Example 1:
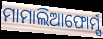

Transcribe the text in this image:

ମାମାଲିଆଫୋର୍ମ୍ସ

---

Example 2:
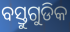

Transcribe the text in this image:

ବସ୍ତୁଗୁଡିକ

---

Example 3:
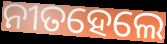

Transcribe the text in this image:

ନୀତହେଲେ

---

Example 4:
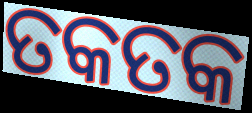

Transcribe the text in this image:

ତକତକ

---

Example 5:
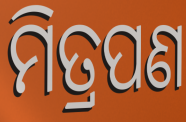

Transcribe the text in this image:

ମିତ୍ରପଣ